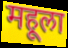
महूला